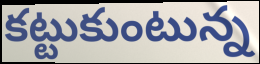
కట్టుకుంటున్న